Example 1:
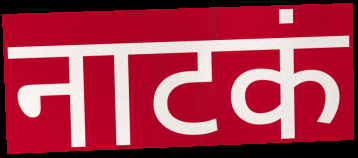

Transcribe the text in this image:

नाटकं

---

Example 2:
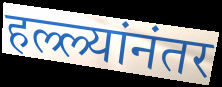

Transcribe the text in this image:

हल्ल्यांनंतर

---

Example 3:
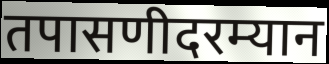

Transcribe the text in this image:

तपासणीदरम्यान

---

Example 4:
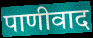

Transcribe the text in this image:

पाणीवाद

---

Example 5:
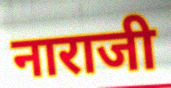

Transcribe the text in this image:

नाराजी